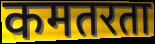
कमतरता